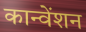
कान्वेंशन